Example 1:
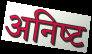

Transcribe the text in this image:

अनिष्‍ट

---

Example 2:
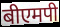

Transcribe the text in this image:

बीएमपी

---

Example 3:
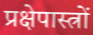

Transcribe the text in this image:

प्रक्षेपास्त्रों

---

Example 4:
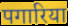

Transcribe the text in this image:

पगारिया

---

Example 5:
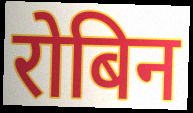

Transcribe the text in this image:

रोबिन